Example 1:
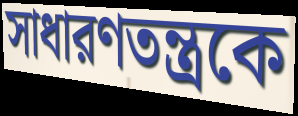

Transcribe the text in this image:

সাধারণতন্ত্রকে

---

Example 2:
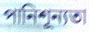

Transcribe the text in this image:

পানিশূন্যতা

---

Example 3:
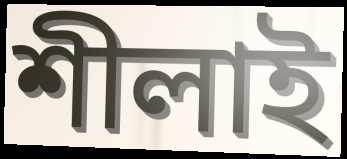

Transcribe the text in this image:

শীলাই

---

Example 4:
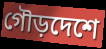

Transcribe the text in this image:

গৌড়দেশে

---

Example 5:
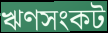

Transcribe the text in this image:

ঋণসংকট